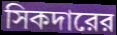
সিকদারের